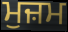
ਮੁਜ਼ਮ